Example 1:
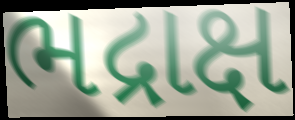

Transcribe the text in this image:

ભદ્રાક્ષ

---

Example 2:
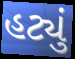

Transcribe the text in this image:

હટ્યું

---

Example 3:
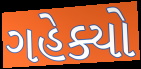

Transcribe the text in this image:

ગહેક્યો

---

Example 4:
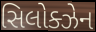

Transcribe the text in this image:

સિલોક્ઝેન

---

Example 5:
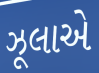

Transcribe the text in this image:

ઝૂલાએ